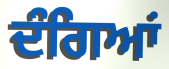
ਦੰਗਿਆਂ